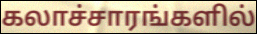
கலாச்சாரங்களில்